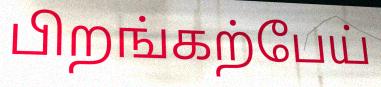
பிறங்கற்பேய்